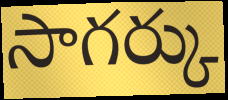
సాగర్కు